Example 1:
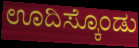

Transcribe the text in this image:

ಊದಿಸ್ಕೊಂಡು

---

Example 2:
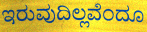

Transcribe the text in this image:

ಇರುವುದಿಲ್ಲವೆಂದೂ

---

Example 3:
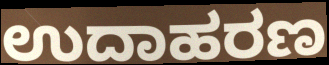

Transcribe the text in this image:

ಉದಾಹರಣ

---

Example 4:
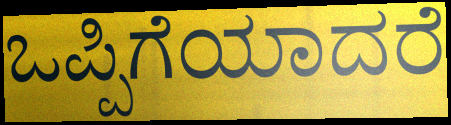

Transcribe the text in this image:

ಒಪ್ಪಿಗೆಯಾದರೆ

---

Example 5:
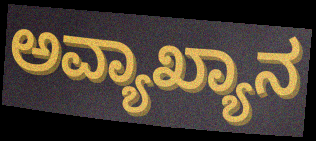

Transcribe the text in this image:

ಅವ್ಯಾಖ್ಯಾನ